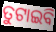
ତୁଟାଇବି